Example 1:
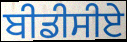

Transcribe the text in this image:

ਬੀਡੀਸੀਏ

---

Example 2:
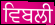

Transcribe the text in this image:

ਵਿਬਲੀ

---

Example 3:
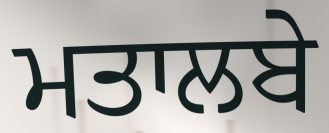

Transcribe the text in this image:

ਮਤਾਲਬੇ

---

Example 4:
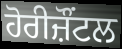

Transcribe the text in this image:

ਹੋਰੀਜ਼ੌਂਟਲ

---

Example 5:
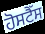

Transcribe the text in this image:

ਹੋਸਟੈੱਸ